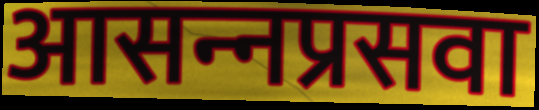
आसन्नप्रसवा